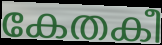
കേതകീ